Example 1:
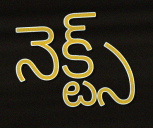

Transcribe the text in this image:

నెక్ట్స్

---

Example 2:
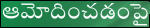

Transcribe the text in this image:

ఆమోదించడంపై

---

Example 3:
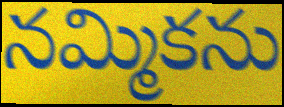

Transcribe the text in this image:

నమ్మికను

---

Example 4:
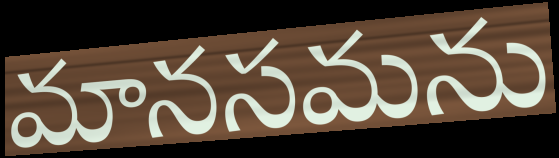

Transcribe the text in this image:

మానసమను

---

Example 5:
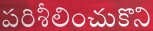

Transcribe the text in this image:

పరిశీలించుకొని